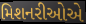
મિશનરીઓએ